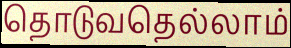
தொடுவதெல்லாம்